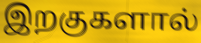
இறகுகளால்